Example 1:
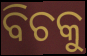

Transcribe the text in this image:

ବିଚକୁ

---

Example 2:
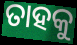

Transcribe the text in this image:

ତାହକୁ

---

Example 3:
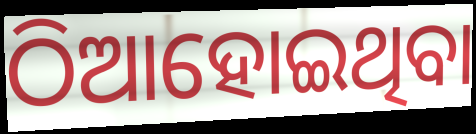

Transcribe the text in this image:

ଠିଆହୋଇଥିବା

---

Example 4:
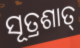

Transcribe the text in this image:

ସୂତ୍ରଶାତ୍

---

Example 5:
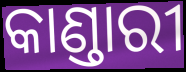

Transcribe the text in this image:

କାଣ୍ଡାରୀ